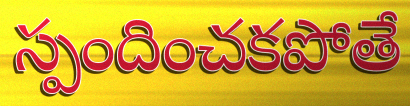
స్పందించకపోతే